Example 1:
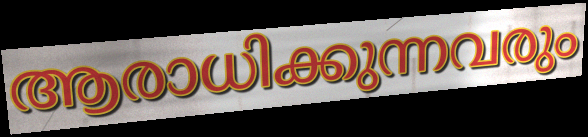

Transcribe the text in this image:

ആരാധിക്കുന്നവരും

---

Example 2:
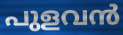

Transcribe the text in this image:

പുളവൻ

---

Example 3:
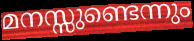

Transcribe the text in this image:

മനസ്സുണ്ടെന്നും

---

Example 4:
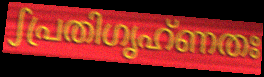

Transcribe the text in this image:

ഽപ്രതിഗൃഹ്ണതഃ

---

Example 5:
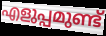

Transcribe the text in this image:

എളുപ്പമുണ്ട്